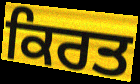
ਕਿਰਤ